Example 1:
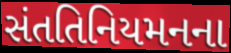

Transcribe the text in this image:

સંતતિનિયમનના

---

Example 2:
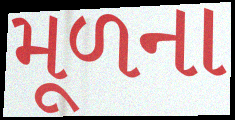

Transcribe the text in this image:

મૂળના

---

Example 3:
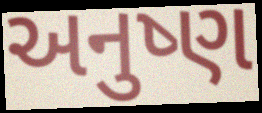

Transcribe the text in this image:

અનુષ્ણ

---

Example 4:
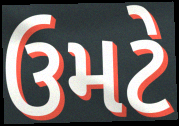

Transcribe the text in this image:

ઉમટે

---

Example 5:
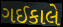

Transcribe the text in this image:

ગઈકાલે